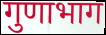
गुणाभाग